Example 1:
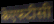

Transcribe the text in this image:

केएफटीसी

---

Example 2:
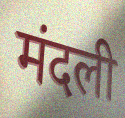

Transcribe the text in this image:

मंदली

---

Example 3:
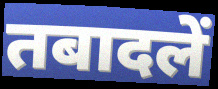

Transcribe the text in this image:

तबादलें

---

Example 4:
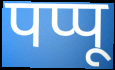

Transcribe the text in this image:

पप्‍पू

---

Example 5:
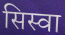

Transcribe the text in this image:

सिस्वा